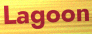
Lagoon